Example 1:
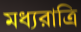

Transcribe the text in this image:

মধ্যরাত্রি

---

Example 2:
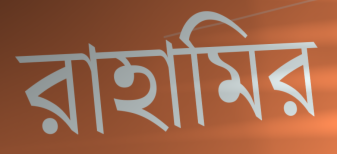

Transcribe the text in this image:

রাহামির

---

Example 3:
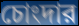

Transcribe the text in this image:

চোংদার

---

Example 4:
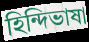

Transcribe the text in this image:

হিন্দিভাষা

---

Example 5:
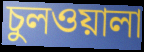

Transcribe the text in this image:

চুলওয়ালা